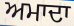
ਅਮਾਦਾ